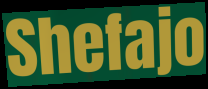
Shefajo